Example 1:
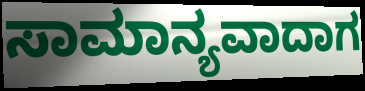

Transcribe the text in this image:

ಸಾಮಾನ್ಯವಾದಾಗ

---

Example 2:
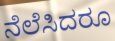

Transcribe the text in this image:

ನೆಲೆಸಿದರೂ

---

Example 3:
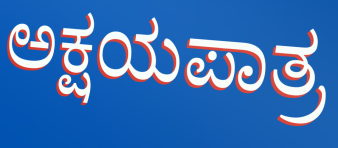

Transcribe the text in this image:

ಅಕ್ಷಯಪಾತ್ರ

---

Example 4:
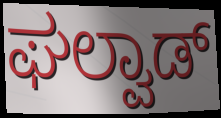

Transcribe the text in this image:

ಘಲ್ವಾಡ್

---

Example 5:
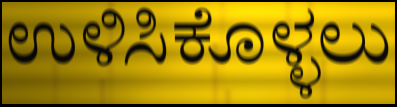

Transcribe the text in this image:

ಉಳಿಸಿಕೊಳ್ಳಲು